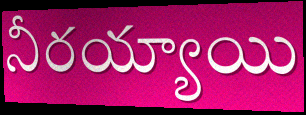
నీరయ్యాయి